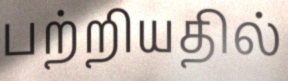
பற்றியதில்